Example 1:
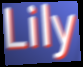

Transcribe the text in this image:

Lily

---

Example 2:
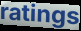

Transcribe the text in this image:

ratings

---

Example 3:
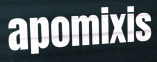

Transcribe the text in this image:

apomixis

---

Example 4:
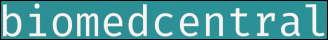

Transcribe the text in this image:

biomedcentral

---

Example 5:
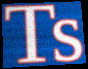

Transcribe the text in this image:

Ts